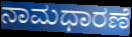
ನಾಮಧಾರಣೆ